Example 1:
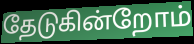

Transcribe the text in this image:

தேடுகின்றோம்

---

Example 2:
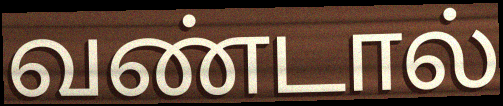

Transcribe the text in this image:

வண்டால்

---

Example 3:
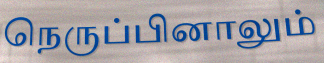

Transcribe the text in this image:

நெருப்பினாலும்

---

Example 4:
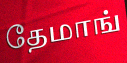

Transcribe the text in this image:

தேமாங்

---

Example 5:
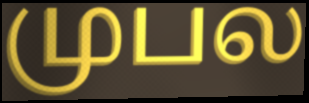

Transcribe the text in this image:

முபல